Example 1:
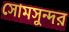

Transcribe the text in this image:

সোমসুন্দর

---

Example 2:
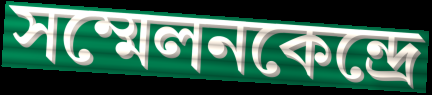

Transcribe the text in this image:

সম্মেলনকেন্দ্রে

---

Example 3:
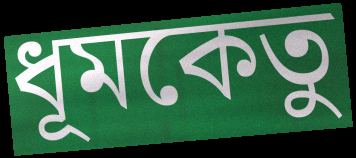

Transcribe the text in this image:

ধূমকেতু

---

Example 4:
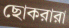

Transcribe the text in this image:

ছোকরারা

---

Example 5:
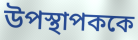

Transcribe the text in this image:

উপস্থাপককে